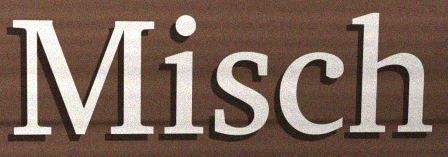
Misch